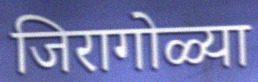
जिरागोळ्या